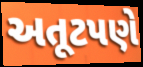
અતૂટપણે